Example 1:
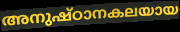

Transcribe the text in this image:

അനുഷ്ഠാനകലയായ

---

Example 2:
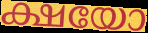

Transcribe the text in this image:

ക്ഷയോ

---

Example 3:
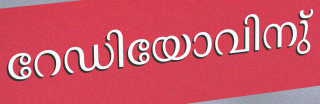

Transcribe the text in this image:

റേഡിയോവിനു്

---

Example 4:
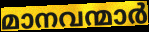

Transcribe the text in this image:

മാനവന്മാർ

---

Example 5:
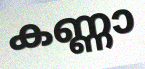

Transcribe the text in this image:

കണ്ണാ